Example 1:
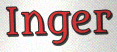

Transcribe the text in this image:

Inger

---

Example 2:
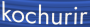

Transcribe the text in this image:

kochurir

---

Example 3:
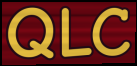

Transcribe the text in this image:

QLC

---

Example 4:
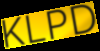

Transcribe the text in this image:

KLPD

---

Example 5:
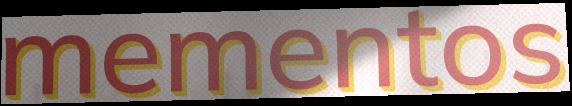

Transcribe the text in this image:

mementos